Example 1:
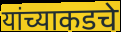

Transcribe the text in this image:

यांच्याकडचे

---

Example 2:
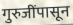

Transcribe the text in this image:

गुरुजींपासून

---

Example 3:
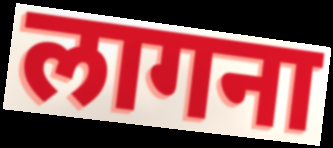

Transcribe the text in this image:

लागना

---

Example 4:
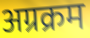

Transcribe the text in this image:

अग्रक्रम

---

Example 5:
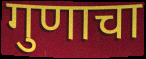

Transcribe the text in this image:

गुणाचा